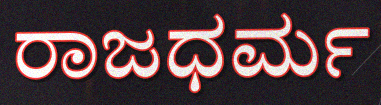
ರಾಜಧರ್ಮ